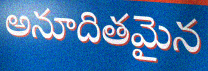
అనూదితమైన